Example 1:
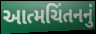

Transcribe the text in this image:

આત્મચિંતનનું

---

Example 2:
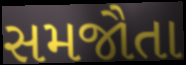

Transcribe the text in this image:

સમજૌતા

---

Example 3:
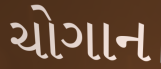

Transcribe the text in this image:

ચોગાન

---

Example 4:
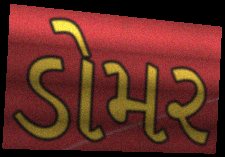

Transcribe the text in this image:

ડોમર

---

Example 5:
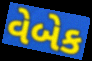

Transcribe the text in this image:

વેબેક